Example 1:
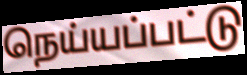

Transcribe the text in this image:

நெய்யப்பட்டு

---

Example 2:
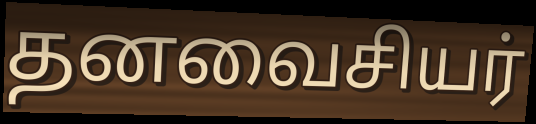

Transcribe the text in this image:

தனவைசியர்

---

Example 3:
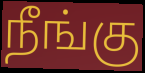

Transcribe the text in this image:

நீங்கு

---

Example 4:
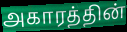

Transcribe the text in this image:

அகாரத்தின்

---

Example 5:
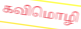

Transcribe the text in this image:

கவிமொழி